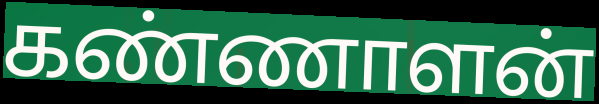
கண்ணாளன்